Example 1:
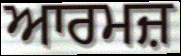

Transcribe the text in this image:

ਆਰਮਜ਼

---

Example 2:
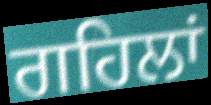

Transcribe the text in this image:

ਗਹਿਲਾਂ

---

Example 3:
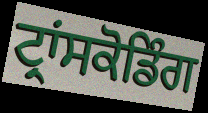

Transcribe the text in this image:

ਟ੍ਰਾਂਸਕੋਡਿੰਗ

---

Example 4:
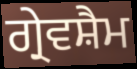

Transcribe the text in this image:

ਗ੍ਰੇਵਸ਼ੈਮ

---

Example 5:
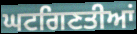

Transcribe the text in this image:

ਘਟਗਿਣਤੀਆਂ